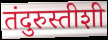
तंदुरुस्तीशी